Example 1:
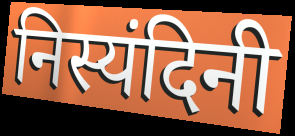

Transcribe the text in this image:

निस्यंदिनी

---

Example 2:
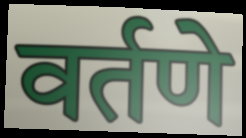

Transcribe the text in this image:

वर्तणे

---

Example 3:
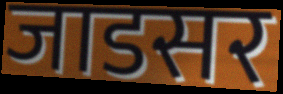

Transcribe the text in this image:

जाडसर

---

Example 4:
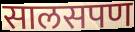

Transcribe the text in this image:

सालसपण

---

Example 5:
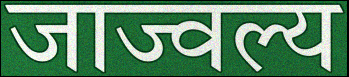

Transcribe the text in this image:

जाज्वल्य